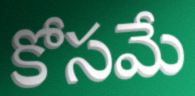
కోసమే